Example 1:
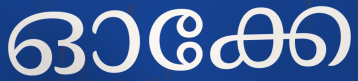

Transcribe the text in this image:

ഓക്കേ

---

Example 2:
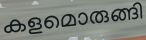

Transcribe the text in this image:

കളമൊരുങ്ങി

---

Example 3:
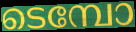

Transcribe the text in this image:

ടെമ്പോ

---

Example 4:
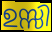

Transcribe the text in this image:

ഉസ്സി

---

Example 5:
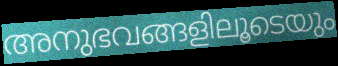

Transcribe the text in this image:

അനുഭവങ്ങളിലൂടെയും